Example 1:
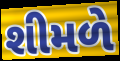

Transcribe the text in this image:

શીમળે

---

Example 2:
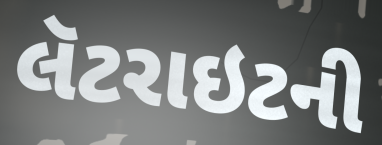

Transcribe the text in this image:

લૅટરાઇટની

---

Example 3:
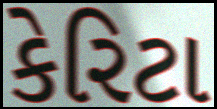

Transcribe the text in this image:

કેરિટા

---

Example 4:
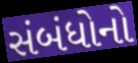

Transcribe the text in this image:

સંબંધોનો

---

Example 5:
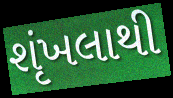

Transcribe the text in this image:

શૃંખલાથી